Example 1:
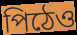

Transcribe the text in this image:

পিঠেও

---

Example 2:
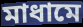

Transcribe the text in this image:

মাধামে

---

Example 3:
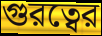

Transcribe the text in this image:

গুরত্বের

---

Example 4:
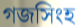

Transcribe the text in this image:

গজসিংহ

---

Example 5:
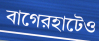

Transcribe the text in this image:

বাগেরহাটেও